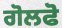
ਗੋਲਫੋ